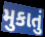
મુકાતું